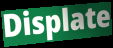
Displate